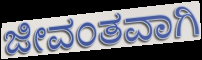
ಜೀವಂತವಾಗಿ